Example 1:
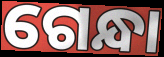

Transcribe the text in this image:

ଗେନ୍ଧା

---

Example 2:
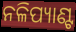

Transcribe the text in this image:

ନଳିପ୍ୟାଣ୍ଟ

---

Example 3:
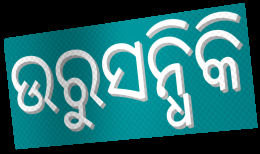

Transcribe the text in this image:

ଉରୁସନ୍ଧିକି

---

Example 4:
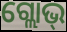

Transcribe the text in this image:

ଗ୍ଲୋଭ୍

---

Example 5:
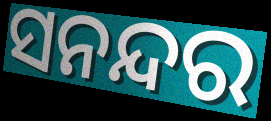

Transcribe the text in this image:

ସନନ୍ଦର